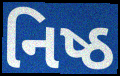
નિષ્ઠ